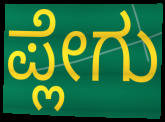
ಪ್ಲೇಗು